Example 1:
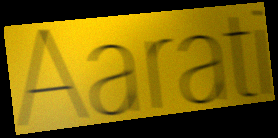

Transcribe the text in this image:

Aarati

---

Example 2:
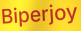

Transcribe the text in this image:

Biperjoy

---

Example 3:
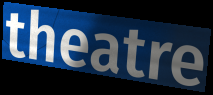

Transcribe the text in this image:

theatre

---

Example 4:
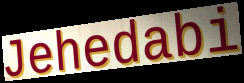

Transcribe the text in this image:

Jehedabi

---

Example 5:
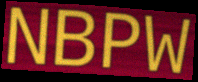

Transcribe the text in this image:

NBPW